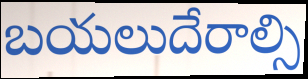
బయలుదేరాల్సి